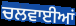
ਚਲਵਾਈਆਂ